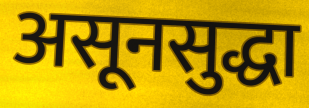
असूनसुद्धा